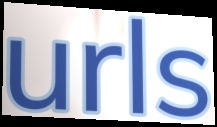
urls